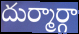
దుర్మార్గా